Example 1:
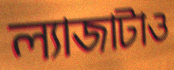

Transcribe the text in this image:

ল্যাজাটাও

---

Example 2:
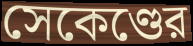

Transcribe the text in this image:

সেকেণ্ডের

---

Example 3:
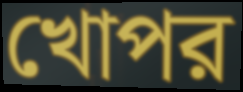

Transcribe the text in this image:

খোপর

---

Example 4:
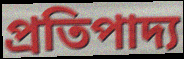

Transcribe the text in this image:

প্রতিপাদ্য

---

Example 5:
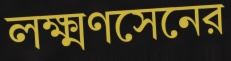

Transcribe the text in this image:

লক্ষ্মণসেনের